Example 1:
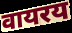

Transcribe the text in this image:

वायरय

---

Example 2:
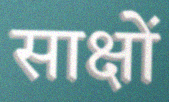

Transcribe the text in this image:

साक्षों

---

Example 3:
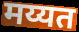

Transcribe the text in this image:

मय्यत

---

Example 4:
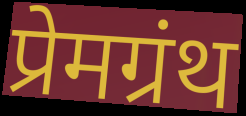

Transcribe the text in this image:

प्रेमग्रंथ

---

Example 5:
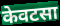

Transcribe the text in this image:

केवटसा